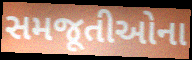
સમજૂતીઓના